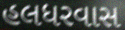
હલધરવાસ